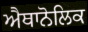
ਐਥਾਨੋਲਿਕ